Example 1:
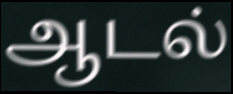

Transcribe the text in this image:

ஆடல்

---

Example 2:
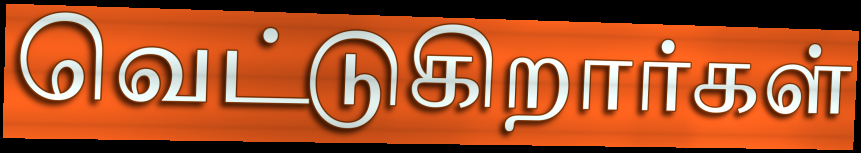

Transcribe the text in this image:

வெட்டுகிறார்கள்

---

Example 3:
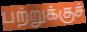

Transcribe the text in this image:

பற்றுக்குச்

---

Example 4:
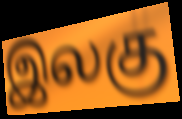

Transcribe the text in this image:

இலகு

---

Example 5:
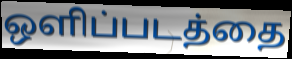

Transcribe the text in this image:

ஒளிப்படத்தை